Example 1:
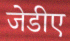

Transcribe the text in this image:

जेडीए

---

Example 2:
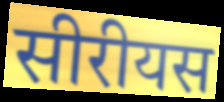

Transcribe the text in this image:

सीरीयस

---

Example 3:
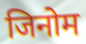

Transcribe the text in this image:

जिनोम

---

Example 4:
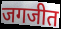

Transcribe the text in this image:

जगजीत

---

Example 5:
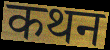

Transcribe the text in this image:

कथन